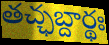
తచ్ఛబ్దార్థః